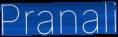
Pranali